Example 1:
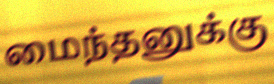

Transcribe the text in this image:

மைந்தனுக்கு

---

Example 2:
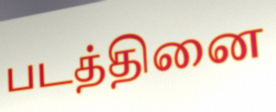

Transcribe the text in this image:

படத்தினை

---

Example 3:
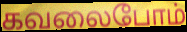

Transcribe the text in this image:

கவலைபோம்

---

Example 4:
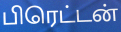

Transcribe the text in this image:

பிரெட்டன்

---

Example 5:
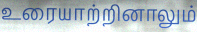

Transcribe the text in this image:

உரையாற்றினாலும்